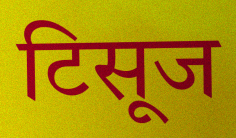
टिसूज